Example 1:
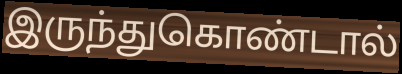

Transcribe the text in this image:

இருந்துகொண்டால்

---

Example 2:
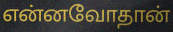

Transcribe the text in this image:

என்னவோதான்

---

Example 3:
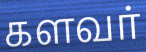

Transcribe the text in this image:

களவர்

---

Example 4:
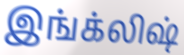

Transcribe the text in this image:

இங்க்லிஷ்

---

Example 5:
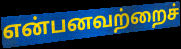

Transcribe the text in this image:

என்பனவற்றைச்